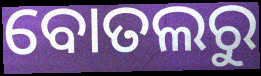
ବୋତଲରୁ